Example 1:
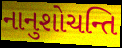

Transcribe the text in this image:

નાનુશોચન્તિ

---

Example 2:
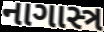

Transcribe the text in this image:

નાગાસ્ત્ર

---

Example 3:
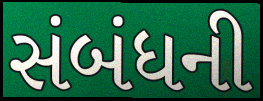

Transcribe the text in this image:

સંબંધની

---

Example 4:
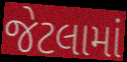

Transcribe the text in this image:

જેટલામાં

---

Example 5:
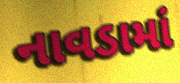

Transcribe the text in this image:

નાવડામાં